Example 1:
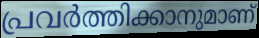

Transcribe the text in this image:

പ്രവർത്തിക്കാനുമാണ്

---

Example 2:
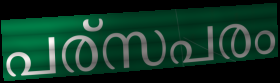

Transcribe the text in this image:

പര്സപരം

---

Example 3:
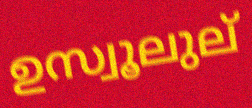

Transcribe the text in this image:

ഉസ്വൂലുല്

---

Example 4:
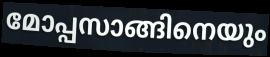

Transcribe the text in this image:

മോപ്പസാങ്ങിനെയും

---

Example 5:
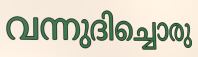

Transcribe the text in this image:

വന്നുദിച്ചൊരു